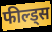
फील्ड्स